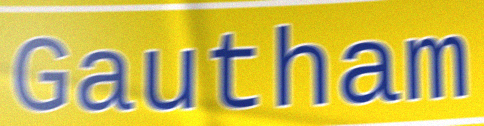
Gautham